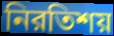
নিরতিশয়